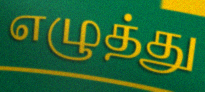
எழுத்து